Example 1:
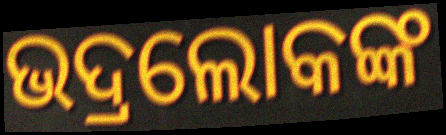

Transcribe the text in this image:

ଭଦ୍ରଲୋକଙ୍କ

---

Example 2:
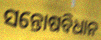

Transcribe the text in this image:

ସନ୍ତୋଷବିଧାନ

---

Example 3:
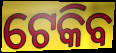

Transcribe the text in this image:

ଟେକିବ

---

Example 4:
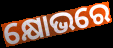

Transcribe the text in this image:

କ୍ଷୋଭରେ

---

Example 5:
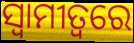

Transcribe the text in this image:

ସ୍ୱାମୀତ୍ୱରେ